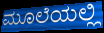
ಮೂಲೆಯಲ್ಲಿ